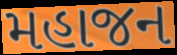
મહાજન